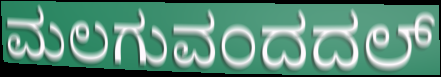
ಮಲಗುವಂದದಲ್